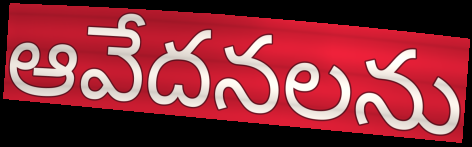
ఆవేదనలను